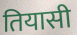
तियासी